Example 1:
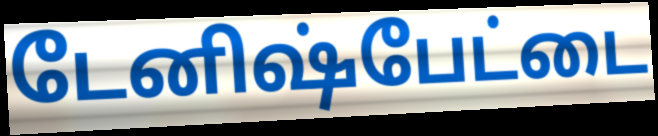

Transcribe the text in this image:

டேனிஷ்பேட்டை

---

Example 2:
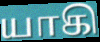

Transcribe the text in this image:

யாகி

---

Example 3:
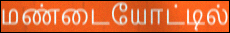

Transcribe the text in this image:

மண்டையோட்டில்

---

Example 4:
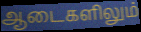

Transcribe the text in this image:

ஆடைகளிலும்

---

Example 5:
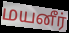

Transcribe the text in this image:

மயனீர்